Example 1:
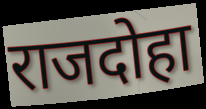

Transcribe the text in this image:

राजदोहा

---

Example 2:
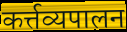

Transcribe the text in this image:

कर्त्तव्यपालन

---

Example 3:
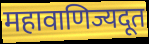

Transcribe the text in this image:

महावाणिज्यदूत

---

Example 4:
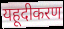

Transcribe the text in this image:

यहूदीकरण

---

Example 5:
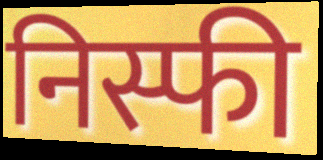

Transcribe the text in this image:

निस्फी